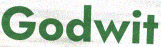
Godwit